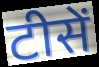
टीसें